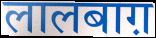
लालबाग़